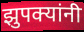
झुपक्यांनी